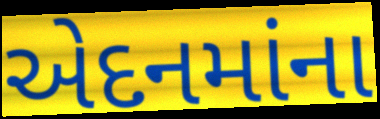
એદનમાંના